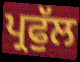
ਪ੍ਰਫੁੱਲ